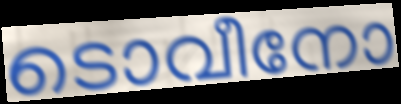
ടൊവീനോ